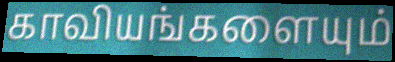
காவியங்களையும்